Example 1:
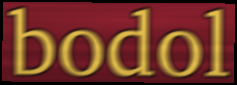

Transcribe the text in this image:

bodol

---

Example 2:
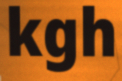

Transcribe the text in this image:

kgh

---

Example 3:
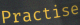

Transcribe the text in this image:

Practise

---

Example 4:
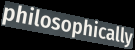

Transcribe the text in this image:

philosophically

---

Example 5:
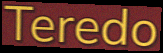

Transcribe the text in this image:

Teredo